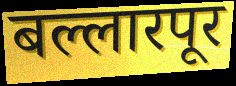
बल्लारपूर